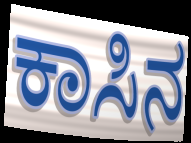
ಕಾಸಿನ